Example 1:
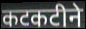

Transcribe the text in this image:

कटकटीने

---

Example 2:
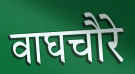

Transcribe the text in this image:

वाघचौरे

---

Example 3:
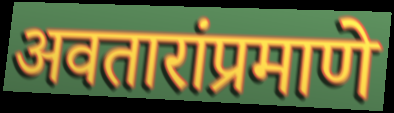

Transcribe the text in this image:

अवतारांप्रमाणे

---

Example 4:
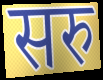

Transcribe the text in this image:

सरु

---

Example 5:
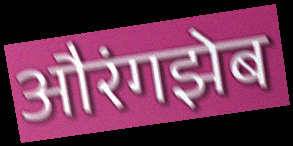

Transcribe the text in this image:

औरंगझेब